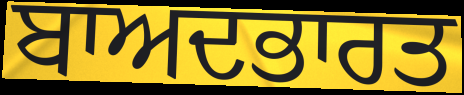
ਬਾਅਦਭਾਰਤ